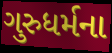
ગુરુધર્મના